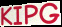
KIPG